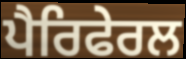
ਪੈਰਿਫੇਰਲ